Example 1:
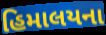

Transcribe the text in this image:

હિમાલયના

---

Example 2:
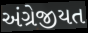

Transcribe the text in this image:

અંગ્રેજીયત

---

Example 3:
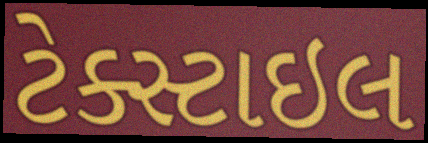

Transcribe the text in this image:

ટેક્સ્ટાઇલ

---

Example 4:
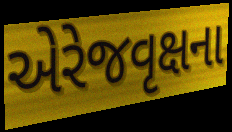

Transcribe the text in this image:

એરેજવૃક્ષના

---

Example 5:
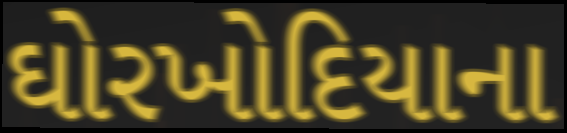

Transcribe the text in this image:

ઘોરખોદિયાના